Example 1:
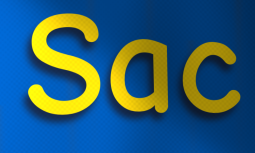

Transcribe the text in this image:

Sac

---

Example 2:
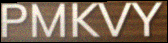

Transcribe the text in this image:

PMKVY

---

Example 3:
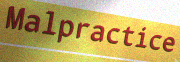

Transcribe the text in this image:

Malpractice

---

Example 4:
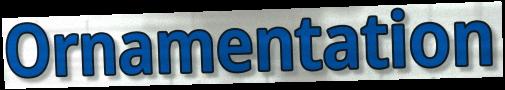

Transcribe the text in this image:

Ornamentation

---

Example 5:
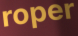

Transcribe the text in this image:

roper